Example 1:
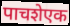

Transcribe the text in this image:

पाचशेएक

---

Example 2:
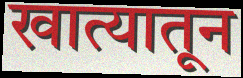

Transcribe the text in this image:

खात्यातून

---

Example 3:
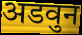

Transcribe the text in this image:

अडवुन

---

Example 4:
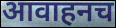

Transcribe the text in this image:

आवाहनच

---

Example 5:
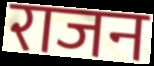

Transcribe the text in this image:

राजन